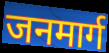
जनमार्ग